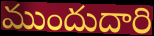
ముందుదారి